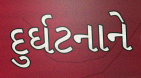
દુર્ઘટનાને